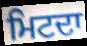
ਮਿਟਦਾ